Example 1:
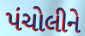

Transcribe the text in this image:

પંચોલીને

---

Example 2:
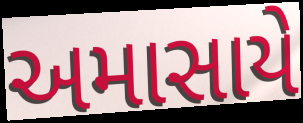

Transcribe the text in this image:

અમાસાયે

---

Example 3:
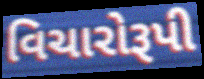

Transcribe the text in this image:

વિચારોરૂપી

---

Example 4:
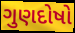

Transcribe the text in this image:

ગુણદોષો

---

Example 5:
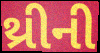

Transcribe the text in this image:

થ્રીની